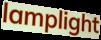
lamplight